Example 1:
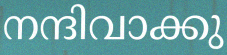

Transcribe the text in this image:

നന്ദിവാക്കു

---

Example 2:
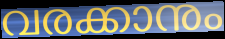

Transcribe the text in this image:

വരക്കാനും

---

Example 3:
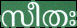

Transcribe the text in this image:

സീതഃ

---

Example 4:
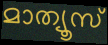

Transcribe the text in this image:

മാത്യൂസ്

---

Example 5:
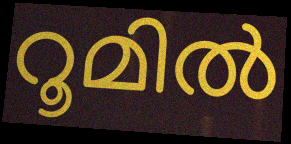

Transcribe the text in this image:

റൂമിൽ